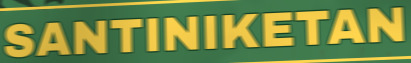
SANTINIKETAN